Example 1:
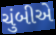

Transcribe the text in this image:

ચુંબીએ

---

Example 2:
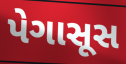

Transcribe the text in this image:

પેગાસૂસ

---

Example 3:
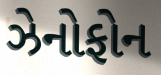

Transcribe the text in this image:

ઝેનોફોન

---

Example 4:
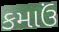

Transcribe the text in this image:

કમાઉં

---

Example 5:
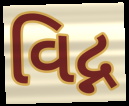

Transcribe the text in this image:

વિદ્ન